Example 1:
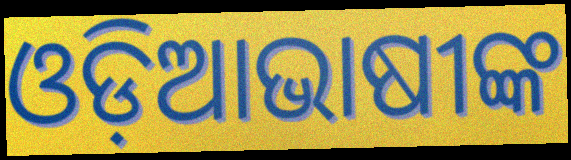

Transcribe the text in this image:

ଓଡ଼ିଆଭାଷୀଙ୍କ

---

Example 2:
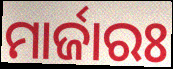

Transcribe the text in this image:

ମାର୍ଜାରଃ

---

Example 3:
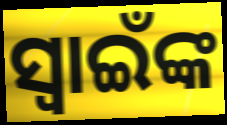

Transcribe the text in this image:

ସ୍ଵାଇଁଙ୍କ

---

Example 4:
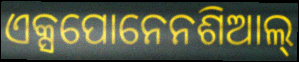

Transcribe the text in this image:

ଏକ୍ସପୋନେନଶିଆଲ୍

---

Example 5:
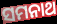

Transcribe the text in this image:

ସମନାଥ